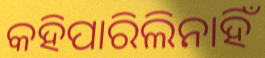
କହିପାରିଲିନାହିଁ